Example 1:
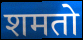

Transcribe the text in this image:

शमतो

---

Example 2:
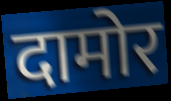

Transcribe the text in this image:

दामोर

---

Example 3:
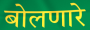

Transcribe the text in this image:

बोलणारे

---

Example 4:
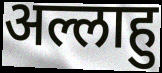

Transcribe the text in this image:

अल्लाहु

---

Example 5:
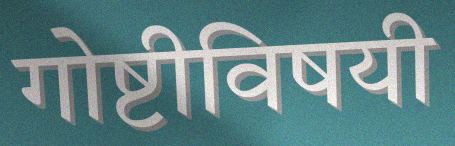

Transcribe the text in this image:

गोष्टीविषयी